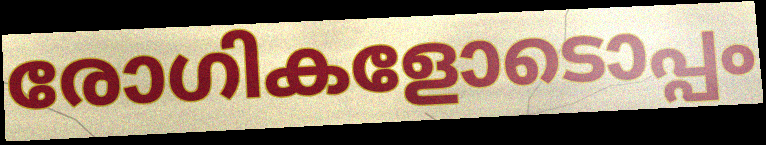
രോഗികളോടൊപ്പം